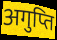
अगुप्ति